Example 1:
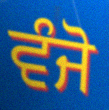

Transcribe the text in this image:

ਵੰਜੋ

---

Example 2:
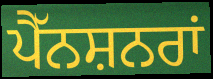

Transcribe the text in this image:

ਪੈੱਨਸ਼ਨਰਾਂ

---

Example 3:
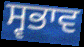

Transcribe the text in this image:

ਸ੍ਵਭਾਵ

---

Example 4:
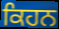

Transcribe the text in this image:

ਕਿਹਨ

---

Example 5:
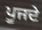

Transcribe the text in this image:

ਪੂਜਦੇ